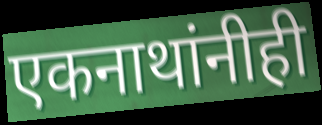
एकनाथांनीही